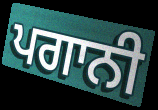
ਪਗਾਨੀ